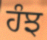
ਹੰਝ